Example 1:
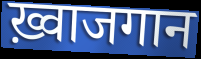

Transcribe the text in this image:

ख़्वाजगान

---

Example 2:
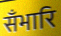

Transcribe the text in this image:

सँभारि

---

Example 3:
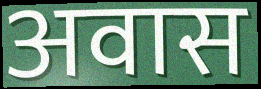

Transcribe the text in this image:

अवास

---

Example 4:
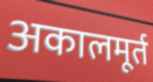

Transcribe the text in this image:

अकालमूर्त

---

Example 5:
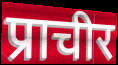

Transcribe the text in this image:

प्राचीर